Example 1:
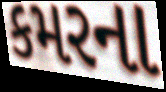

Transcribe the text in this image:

કમરના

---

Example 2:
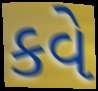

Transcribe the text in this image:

કવે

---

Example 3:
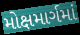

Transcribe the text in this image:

મોક્ષમાર્ગમાં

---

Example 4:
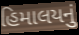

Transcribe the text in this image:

હિમાલયનું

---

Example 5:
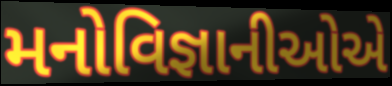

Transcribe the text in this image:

મનોવિજ્ઞાનીઓએ